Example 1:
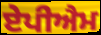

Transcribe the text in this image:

ਏਪੀਐਮ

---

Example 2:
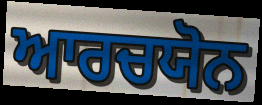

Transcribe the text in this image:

ਆਰਚਯੋਨ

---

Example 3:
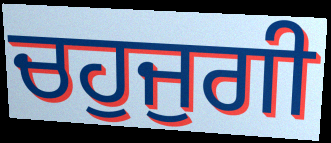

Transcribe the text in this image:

ਚਹੁਜੁਗੀ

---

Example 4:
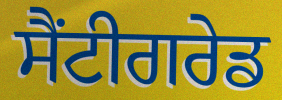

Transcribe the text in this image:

ਸੈਂਟੀਗਰੇਡ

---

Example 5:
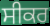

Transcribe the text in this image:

ਸੀਕਰ